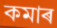
কমাৰ